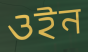
ওইন